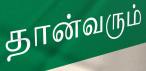
தான்வரும்